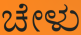
ಚೇಳು